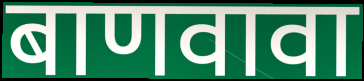
बाणवावा